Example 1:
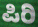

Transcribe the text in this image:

ಪಿರಿ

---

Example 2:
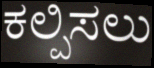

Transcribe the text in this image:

ಕಲ್ಪಿಸಲು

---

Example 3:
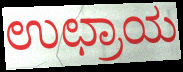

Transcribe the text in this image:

ಉಛ್ರಾಯ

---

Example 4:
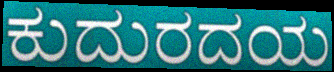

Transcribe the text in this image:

ಕುದುರದಯ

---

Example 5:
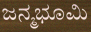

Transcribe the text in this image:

ಜನ್ಮಭೂಮಿ